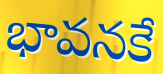
భావనకే